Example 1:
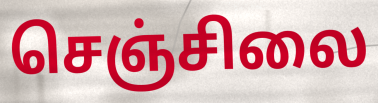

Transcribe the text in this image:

செஞ்சிலை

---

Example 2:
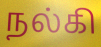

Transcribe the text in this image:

நல்கி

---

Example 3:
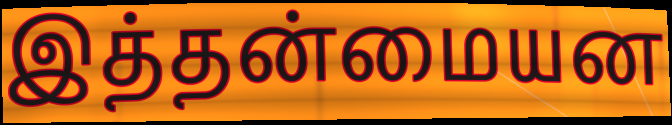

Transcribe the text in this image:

இத்தன்மையன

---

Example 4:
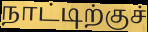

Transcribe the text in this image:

நாட்டிற்குச்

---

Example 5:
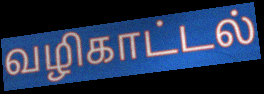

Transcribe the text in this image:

வழிகாட்டல்